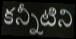
కన్నీటిని